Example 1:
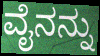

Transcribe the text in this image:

ವೈನನ್ನು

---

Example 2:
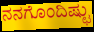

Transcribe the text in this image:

ನನಗೊಂದಿಷ್ಟು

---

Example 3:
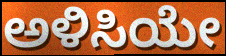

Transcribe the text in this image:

ಅಳಿಸಿಯೇ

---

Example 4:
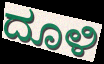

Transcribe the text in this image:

ದೂಳಿ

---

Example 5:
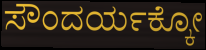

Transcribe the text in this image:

ಸೌಂದರ್ಯಕ್ಕೋ